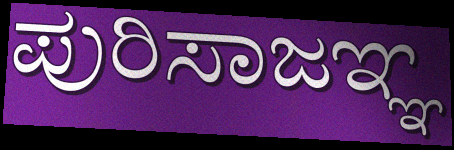
ಪುರಿಸಾಜಞ್ಞ